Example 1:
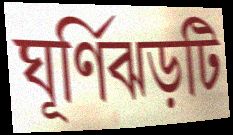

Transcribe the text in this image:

ঘূর্ণিঝড়টি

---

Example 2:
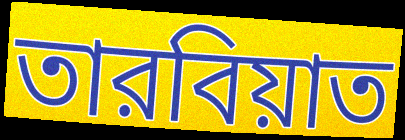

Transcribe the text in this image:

তারবিয়াত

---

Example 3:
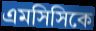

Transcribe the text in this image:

এমসিসিকে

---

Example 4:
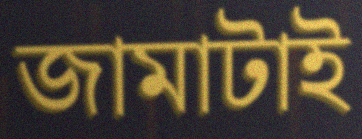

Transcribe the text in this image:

জামাটাই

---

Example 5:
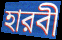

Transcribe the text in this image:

হারবী